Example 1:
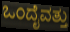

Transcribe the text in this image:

ಒಂದೈವತ್ತು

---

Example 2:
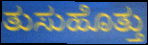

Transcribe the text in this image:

ತುಸುಹೊತ್ತು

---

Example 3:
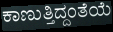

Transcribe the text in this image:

ಕಾಣುತ್ತಿದ್ದಂತೆಯೆ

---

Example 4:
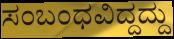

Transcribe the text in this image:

ಸಂಬಂಧವಿದ್ದದ್ದು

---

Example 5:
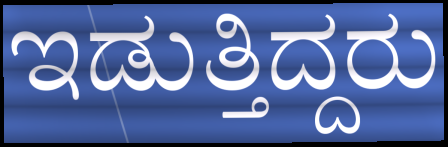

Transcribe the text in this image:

ಇಡುತ್ತಿದ್ದರು